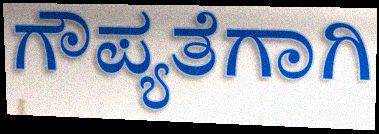
ಗೌಪ್ಯತೆಗಾಗಿ